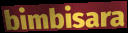
bimbisara